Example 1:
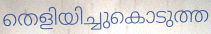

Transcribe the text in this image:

തെളിയിച്ചുകൊടുത്ത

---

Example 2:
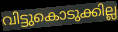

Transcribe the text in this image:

വിട്ടുകൊടുക്കില്ല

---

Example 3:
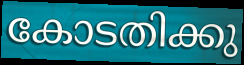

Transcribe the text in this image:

കോടതിക്കു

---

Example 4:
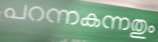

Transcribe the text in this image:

പറന്നകന്നതും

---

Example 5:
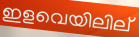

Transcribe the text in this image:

ഇളവെയിലില്